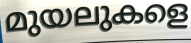
മുയലുകളെ